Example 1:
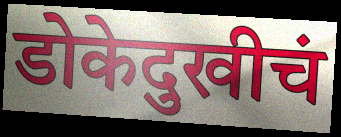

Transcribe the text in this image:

डोकेदुखीचं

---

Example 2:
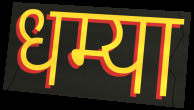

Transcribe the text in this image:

धम्या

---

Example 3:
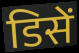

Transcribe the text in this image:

डिसें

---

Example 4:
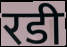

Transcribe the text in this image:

रडी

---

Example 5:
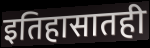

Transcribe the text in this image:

इतिहासातही